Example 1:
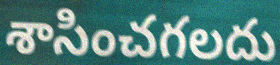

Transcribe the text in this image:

శాసించగలదు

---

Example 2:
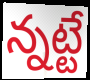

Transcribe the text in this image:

న్నట్టే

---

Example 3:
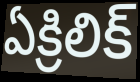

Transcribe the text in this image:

ఏక్రిలిక్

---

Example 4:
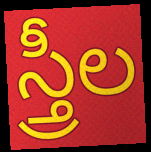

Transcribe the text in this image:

స్త్రీల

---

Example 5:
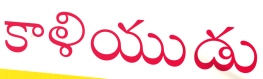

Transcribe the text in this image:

కాళియుడు